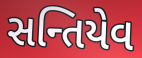
સન્તિયેવ